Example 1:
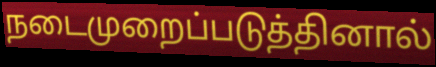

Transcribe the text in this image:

நடைமுறைப்படுத்தினால்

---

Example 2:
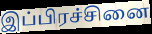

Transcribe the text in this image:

இப்பிரச்சினை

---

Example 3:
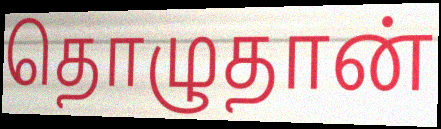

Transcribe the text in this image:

தொழுதான்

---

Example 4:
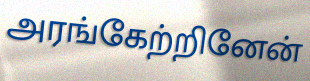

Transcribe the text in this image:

அரங்கேற்றினேன்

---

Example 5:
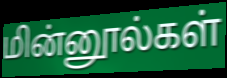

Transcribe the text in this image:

மின்னூல்கள்